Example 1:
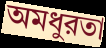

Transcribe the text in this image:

অমধুরতা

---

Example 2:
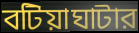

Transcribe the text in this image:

বটিয়াঘাটার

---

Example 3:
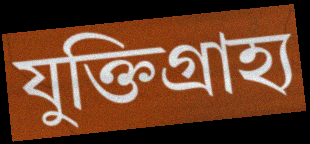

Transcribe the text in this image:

যুক্তিগ্রাহ্য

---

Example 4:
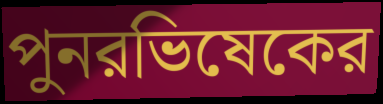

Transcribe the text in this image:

পুনরভিষেকের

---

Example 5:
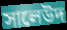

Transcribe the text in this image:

সালেউদ